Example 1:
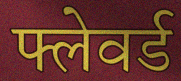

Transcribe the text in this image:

फ्लेवर्ड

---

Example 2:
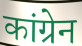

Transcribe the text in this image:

कांग्रेन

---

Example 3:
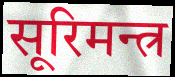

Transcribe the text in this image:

सूरिमन्त्र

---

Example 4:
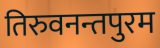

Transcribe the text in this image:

तिरुवनन्तपुरम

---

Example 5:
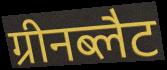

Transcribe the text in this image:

ग्रीनब्लैट